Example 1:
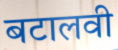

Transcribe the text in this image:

बटालवी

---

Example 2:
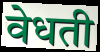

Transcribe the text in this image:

वेधती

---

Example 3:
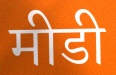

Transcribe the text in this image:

मीडी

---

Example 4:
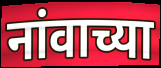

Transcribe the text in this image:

नांवाच्या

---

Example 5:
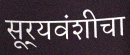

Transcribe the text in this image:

सूर्यवंशीचा